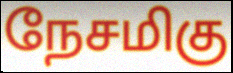
நேசமிகு